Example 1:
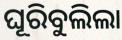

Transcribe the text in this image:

ଘୂରିବୁଲିଲା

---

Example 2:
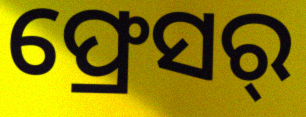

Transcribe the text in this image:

ଫ୍ରେସର୍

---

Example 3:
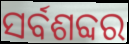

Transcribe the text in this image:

ସର୍ବଶବ୍ଦର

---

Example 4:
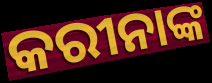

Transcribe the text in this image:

କରୀନାଙ୍କ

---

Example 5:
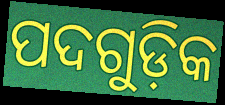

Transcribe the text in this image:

ପଦଗୁଡ଼ିକ